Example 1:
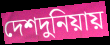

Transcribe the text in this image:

দেশদুনিয়ায়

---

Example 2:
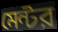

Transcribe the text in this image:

মেন্টর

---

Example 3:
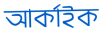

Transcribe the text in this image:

আর্কাইক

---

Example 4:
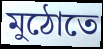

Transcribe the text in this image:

মুঠোতে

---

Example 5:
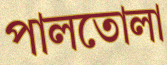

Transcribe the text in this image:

পালতোলা